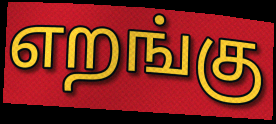
எறங்கு